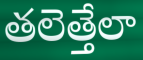
తలెత్తేలా